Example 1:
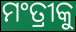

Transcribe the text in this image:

ମଂତ୍ରୀକୁ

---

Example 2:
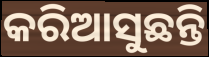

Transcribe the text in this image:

କରିଆସୁଛନ୍ତି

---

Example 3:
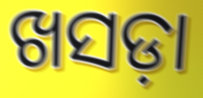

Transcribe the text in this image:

ଖସଡ଼ା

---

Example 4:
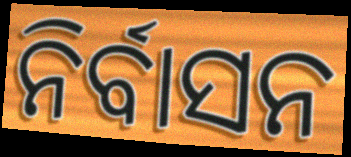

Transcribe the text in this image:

ନିର୍ବାସନ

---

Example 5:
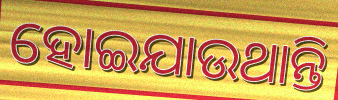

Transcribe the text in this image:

ହୋଇଯାଉଥାନ୍ତି